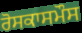
ਰੋਸਕਾਸਮੌਸ